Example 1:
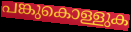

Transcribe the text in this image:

പങ്കുകൊള്ളുക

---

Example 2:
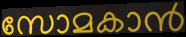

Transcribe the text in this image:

സോമകാൻ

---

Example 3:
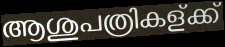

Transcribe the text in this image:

ആശുപത്രികള്ക്ക്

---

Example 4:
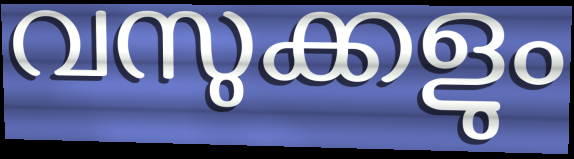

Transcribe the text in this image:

വസുക്കളും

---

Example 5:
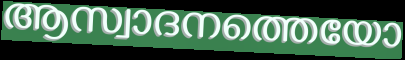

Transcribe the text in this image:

ആസ്വാദനത്തെയോ